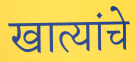
खात्यांचे